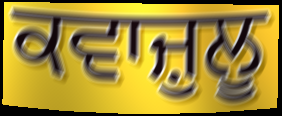
ਕਵਾਜ਼ੁਲੂ